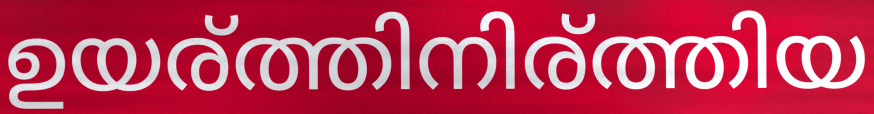
ഉയര്ത്തിനിര്ത്തിയ